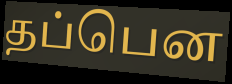
தப்பென